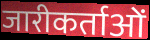
जारीकर्ताओं